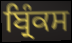
ਬ੍ਰਿੰਕਸ